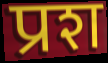
प्रश